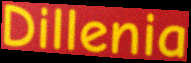
Dillenia